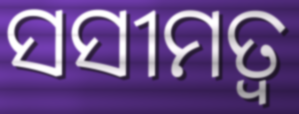
ସସୀମତ୍ୱ